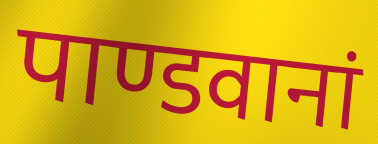
पाण्डवानां